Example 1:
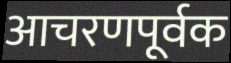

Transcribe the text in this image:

आचरणपूर्वक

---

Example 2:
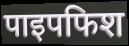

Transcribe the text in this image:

पाइपफिश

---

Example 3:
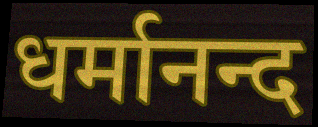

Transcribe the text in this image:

धर्मानन्द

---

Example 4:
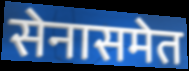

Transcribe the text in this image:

सेनासमेत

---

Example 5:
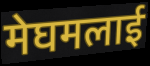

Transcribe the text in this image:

मेघमलाई